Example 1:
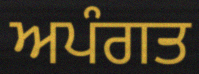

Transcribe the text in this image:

ਅਪੰਗਤ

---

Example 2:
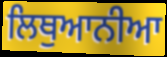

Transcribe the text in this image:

ਲਿਥੁਆਨੀਆ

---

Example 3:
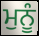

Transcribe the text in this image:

ਮੁਨੂੰ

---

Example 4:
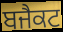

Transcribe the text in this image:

ਬਜੈਕਟ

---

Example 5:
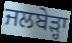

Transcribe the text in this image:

ਜਲਬੇੜ੍ਹਾ